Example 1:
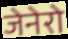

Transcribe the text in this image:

जेनेरो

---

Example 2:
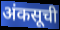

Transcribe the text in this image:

अंकसूची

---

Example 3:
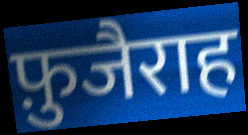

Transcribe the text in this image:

फ़ुजैराह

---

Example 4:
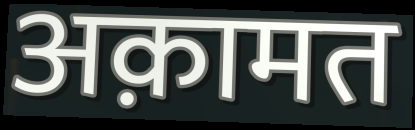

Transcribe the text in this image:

अक़ामत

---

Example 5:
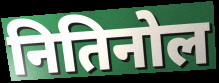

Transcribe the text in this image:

नितिनोल